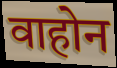
वाहोन